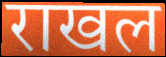
राखल